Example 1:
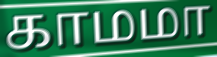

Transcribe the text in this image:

காமமா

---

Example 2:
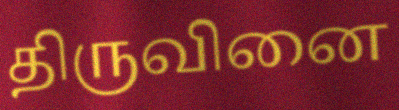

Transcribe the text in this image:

திருவினை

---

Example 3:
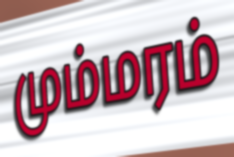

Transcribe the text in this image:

மும்மரம்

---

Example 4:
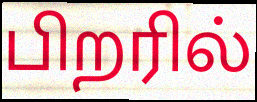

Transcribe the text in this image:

பிறரில்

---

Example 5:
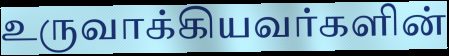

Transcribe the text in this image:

உருவாக்கியவர்களின்